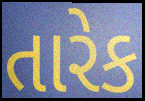
તારેક